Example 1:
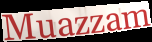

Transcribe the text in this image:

Muazzam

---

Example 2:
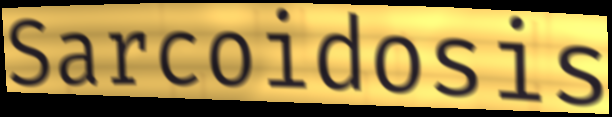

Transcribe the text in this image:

Sarcoidosis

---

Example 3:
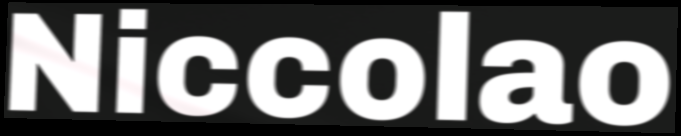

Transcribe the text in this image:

Niccolao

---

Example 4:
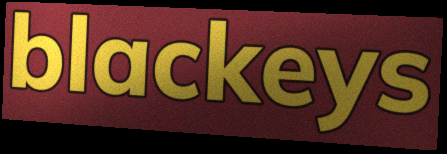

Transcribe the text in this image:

blackeys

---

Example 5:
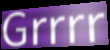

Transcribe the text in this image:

Grrrr